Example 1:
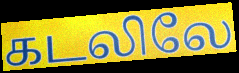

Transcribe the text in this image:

கடலிலே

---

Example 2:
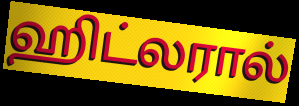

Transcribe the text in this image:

ஹிட்லரால்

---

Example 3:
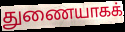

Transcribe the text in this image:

துணையாகக்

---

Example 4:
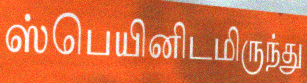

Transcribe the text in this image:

ஸ்பெயினிடமிருந்து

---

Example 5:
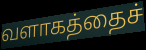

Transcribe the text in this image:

வளாகத்தைச்